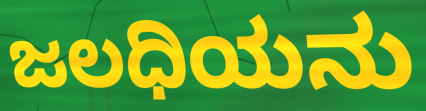
ಜಲಧಿಯನು